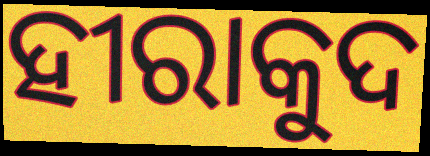
ହୀରାକୁଦ